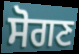
ਸੋਗਣ